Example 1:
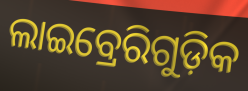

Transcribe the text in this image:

ଲାଇବ୍ରେରିଗୁଡ଼ିକ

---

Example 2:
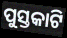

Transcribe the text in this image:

ପୁସ୍ତକାଟି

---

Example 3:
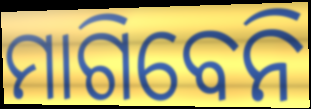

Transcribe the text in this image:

ମାଗିବେନି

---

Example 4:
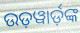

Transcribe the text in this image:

ଉଡ଼ୱାର୍ଡ଼ଙ୍କ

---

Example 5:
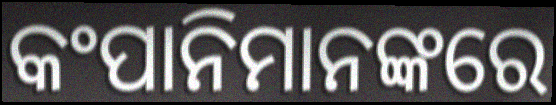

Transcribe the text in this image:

କଂପାନିମାନଙ୍କରେ